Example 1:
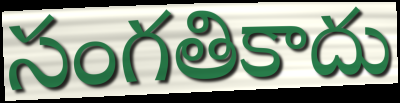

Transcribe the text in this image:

సంగతికాదు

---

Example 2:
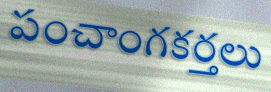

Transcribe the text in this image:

పంచాంగకర్తలు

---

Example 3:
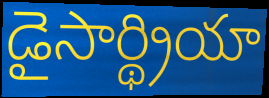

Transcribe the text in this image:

డైసార్థ్రియా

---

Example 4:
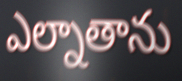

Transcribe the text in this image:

ఎల్నాతాను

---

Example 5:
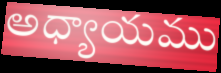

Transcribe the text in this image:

అధ్యాయము